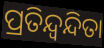
ପ୍ରତିନ୍ଦ୍ବନ୍ଦିତା